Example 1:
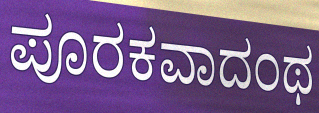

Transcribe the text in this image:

ಪೂರಕವಾದಂಥ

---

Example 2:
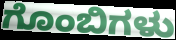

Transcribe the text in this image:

ಗೊಂಬಿಗಳು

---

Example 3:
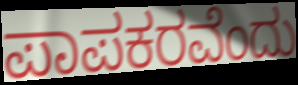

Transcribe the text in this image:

ಪಾಪಕರವೆಂದು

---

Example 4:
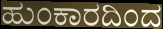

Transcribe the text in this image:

ಹುಂಕಾರದಿಂದ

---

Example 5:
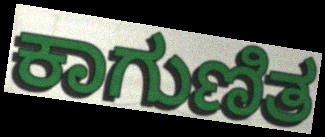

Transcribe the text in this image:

ಕಾಗುಣಿತ